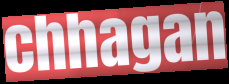
chhagan